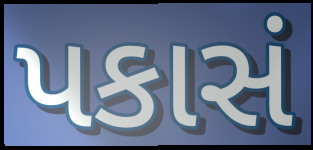
પકાસં